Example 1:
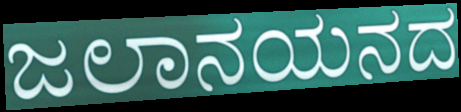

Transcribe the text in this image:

ಜಲಾನಯನದ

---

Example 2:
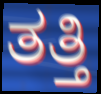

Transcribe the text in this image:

ತತ್ತಿ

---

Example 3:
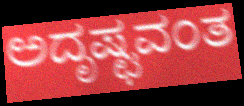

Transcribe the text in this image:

ಅದೃಷ್ಟವಂತ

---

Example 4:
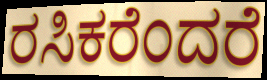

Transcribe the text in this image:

ರಸಿಕರೆಂದರೆ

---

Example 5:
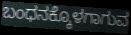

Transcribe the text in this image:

ಬಂಧನಕ್ಕೊಳಗಾಗುವ